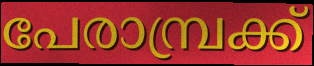
പേരാമ്പ്രക്ക്